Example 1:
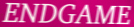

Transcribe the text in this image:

ENDGAME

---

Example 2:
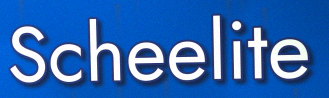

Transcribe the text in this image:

Scheelite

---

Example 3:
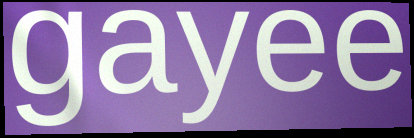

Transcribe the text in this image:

gayee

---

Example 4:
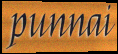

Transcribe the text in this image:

punnai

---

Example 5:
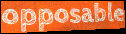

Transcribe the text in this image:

opposable